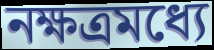
নক্ষত্রমধ্যে